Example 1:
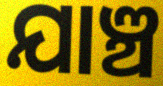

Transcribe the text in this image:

ଯାଞ୍ଚ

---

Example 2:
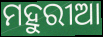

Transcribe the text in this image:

ମହୁରୀଆ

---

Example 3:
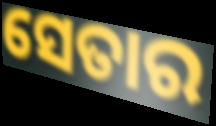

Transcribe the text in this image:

ସେତାର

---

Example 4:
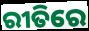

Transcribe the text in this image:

ରୀତିରେ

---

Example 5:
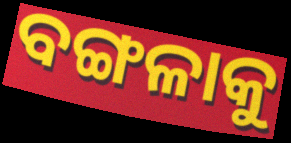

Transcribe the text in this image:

ବଙ୍ଗଳାକୁ